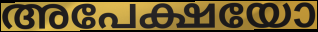
അപേക്ഷയോ